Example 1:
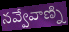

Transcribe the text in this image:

నవ్వేవాణ్ని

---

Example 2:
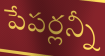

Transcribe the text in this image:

పేపర్లన్నీ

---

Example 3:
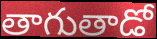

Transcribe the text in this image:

తాగుతాడో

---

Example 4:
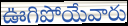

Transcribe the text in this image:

ఊగిపోయేవారు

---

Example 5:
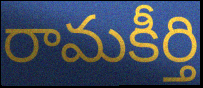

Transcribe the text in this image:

రామకీర్తి